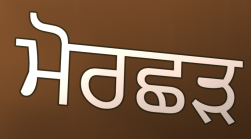
ਮੋਰਛੜ